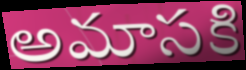
అమాసకి